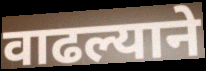
वाढल्याने